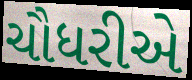
ચૌધરીએ